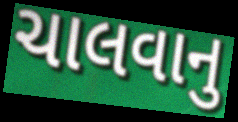
ચાલવાનુ